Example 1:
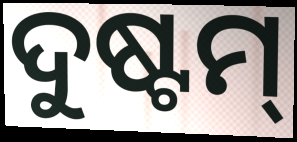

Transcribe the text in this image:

ଦୁଷ୍ଟମ୍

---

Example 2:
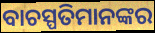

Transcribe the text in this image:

ବାଚସ୍ପତିମାନଙ୍କର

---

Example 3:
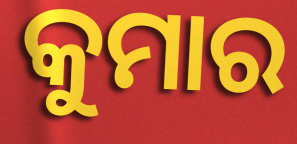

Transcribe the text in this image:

କୁମାର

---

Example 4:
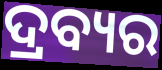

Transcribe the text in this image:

ଦ୍ରବ୍ୟର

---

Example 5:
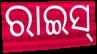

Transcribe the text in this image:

ରାଇସ୍